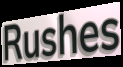
Rushes